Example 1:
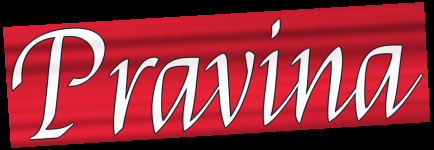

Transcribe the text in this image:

Pravina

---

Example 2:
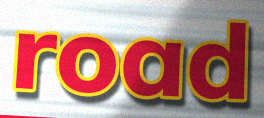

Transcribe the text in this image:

road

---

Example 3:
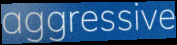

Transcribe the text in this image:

aggressive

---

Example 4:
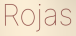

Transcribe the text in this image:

Rojas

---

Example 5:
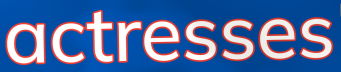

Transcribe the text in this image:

actresses